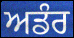
ਅਡੰਰ